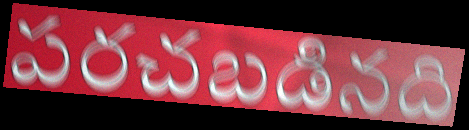
పరచబడినది